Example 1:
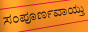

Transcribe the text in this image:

ಸಂಪೂರ್ಣವಾಯ್ತು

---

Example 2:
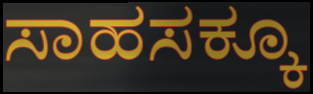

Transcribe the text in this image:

ಸಾಹಸಕ್ಕೂ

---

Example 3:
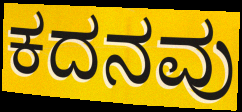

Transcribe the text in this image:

ಕದನವು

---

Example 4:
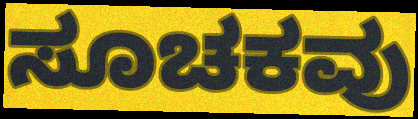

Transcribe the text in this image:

ಸೂಚಕವು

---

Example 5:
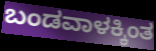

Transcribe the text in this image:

ಬಂಡವಾಳಕ್ಕಿಂತ